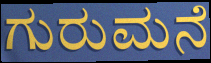
ಗುರುಮನೆ